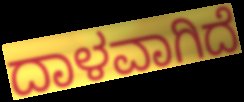
ದಾಳವಾಗಿದೆ